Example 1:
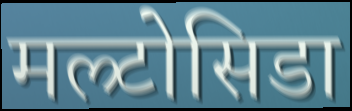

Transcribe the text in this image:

मल्टोसिडा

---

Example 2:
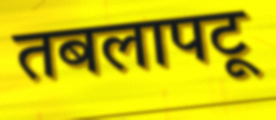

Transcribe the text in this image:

तबलापटू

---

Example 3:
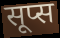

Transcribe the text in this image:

सूप्स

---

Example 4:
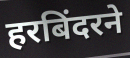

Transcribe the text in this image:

हरबिंदरने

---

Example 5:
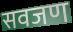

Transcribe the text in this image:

सवजण